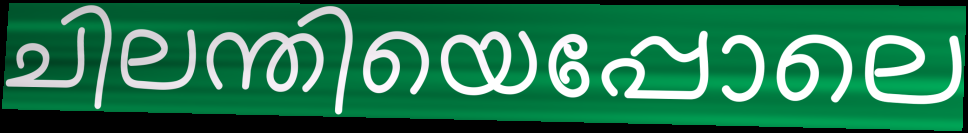
ചിലന്തിയെപ്പോലെ